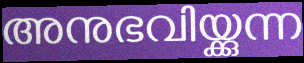
അനുഭവിയ്ക്കുന്ന